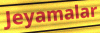
Jeyamalar